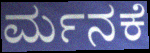
ರ್ಮನಕೆ